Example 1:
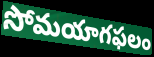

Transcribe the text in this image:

సోమయాగఫలం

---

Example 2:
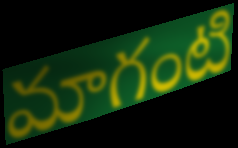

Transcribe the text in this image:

మాగంటి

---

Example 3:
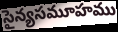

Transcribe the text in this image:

సైన్యసమూహము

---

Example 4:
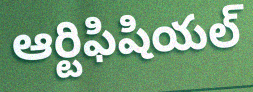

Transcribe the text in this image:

ఆర్టిఫిషియల్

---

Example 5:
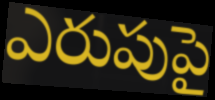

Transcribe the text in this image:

ఎరుపుపై